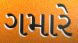
ગમારે